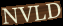
NVLD